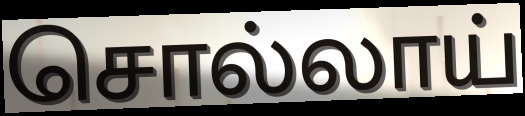
சொல்லாய்